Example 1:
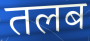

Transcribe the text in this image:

तलब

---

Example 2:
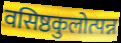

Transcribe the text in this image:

वसिष्ठकुलोत्पन्न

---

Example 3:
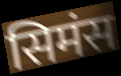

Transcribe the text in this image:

सिमंस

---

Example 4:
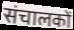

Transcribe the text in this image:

संचालकों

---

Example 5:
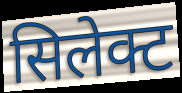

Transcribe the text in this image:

सिलेक्ट